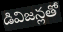
డివిజన్లతో